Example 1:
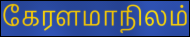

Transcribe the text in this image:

கேரளமாநிலம்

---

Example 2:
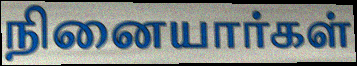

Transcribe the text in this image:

நினையார்கள்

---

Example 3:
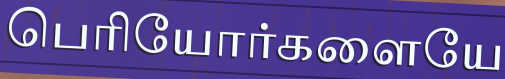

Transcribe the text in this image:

பெரியோர்களையே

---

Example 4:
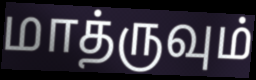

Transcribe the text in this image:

மாத்ருவும்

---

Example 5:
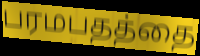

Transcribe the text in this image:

பரமபதத்தை